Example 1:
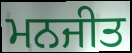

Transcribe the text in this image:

ਮਨਜੀਤ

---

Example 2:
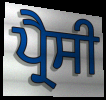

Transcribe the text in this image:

ਪ੍ਰੈਸੀ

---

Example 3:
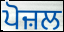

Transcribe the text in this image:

ਪੋਜ਼ਲ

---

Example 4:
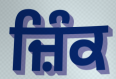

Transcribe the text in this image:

ਜ਼ਿੰਕ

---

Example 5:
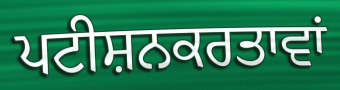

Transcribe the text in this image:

ਪਟੀਸ਼ਨਕਰਤਾਵਾਂ